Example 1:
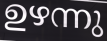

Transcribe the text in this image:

ഉഴന്നു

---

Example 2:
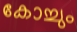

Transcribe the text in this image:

കോച്ചും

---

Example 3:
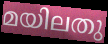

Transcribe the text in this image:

മയിലതു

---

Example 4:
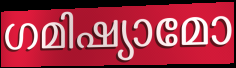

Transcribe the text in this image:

ഗമിഷ്യാമോ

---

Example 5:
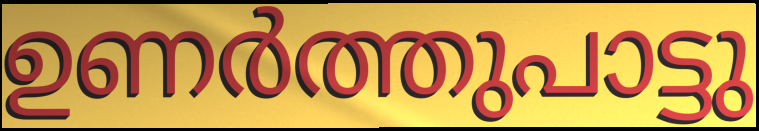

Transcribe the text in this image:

ഉണർത്തുപാട്ടു